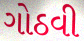
ગોઠવી